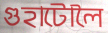
গুহাটোলৈ